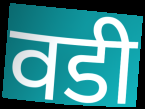
वडी